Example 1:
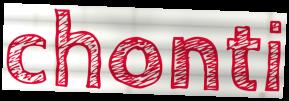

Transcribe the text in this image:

chonti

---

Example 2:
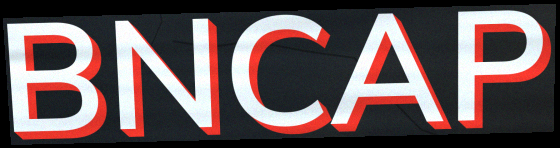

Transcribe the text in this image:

BNCAP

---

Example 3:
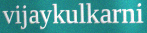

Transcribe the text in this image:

vijaykulkarni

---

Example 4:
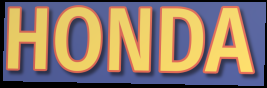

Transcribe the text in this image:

HONDA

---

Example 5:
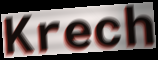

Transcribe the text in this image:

Krech